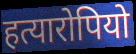
हत्यारोपियो